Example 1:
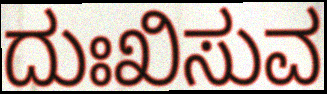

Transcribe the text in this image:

ದುಃಖಿಸುವ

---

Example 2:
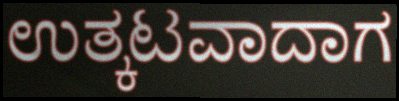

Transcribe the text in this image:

ಉತ್ಕಟವಾದಾಗ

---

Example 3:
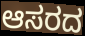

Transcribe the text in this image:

ಆಸರದ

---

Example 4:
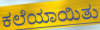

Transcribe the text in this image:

ಕಲೆಯಾಯಿತು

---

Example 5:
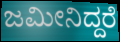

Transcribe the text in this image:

ಜಮೀನಿದ್ದರೆ